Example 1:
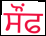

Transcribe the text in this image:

ਸੌਂਫ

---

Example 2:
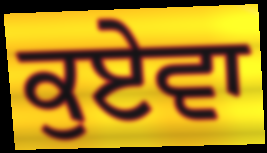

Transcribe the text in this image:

ਕੁਏਵਾ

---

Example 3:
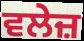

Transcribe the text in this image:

ਵਲੇਜ਼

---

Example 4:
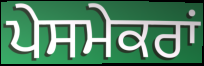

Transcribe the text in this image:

ਪੇਸਮੇਕਰਾਂ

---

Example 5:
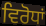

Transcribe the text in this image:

ਵਿਰੋਧਾਂ